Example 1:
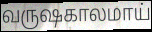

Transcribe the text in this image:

வருஷகாலமாய்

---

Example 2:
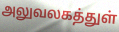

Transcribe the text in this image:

அலுவலகத்துள்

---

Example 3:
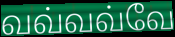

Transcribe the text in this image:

வவ்வவ்வே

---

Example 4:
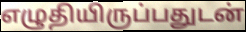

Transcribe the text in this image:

எழுதியிருப்பதுடன்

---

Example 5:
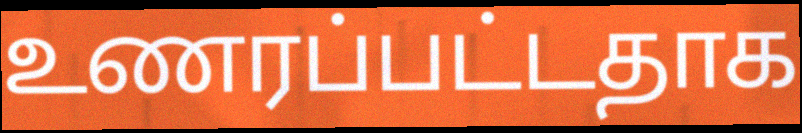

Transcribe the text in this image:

உணரப்பட்டதாக